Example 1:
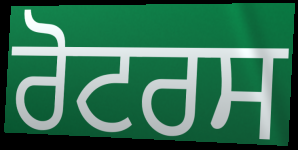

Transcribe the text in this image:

ਰੋਟਰਸ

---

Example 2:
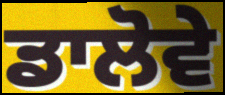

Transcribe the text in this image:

ਡਾਲੋਵੇ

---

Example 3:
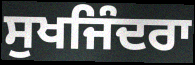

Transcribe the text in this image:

ਸੁਖਜਿੰਦਰਾ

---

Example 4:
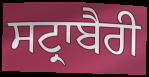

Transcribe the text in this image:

ਸਟ੍ਰਾਬੈਰੀ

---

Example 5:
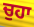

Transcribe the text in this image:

ਚੁਹਾ